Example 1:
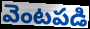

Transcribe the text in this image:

వెంటపడి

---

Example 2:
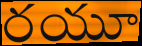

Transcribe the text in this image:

రయూ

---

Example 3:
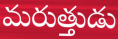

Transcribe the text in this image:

మరుత్తుడు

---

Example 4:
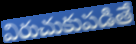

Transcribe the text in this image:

విరుచుకుపడితే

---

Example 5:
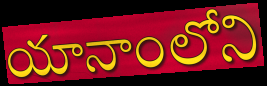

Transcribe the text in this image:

యానాంలోని